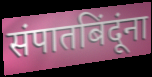
संपातबिंदूंना